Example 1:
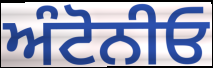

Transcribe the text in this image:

ਅੰਟੋਨੀਓ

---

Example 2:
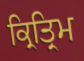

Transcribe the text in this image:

ਕ੍ਰਿਤ੍ਰਿਮ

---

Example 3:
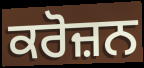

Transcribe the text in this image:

ਕਰੋਜ਼ਨ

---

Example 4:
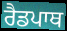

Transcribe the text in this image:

ਰੈਡਪਾਥ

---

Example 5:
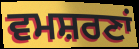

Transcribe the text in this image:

ਵਮਸ਼ਰਣਾਂ